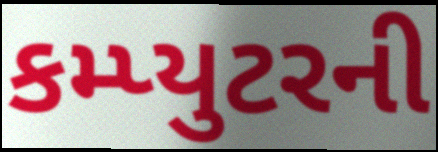
કમ્પ્યુટરની